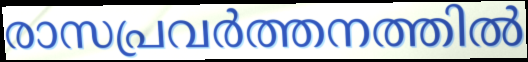
രാസപ്രവർത്തനത്തിൽ